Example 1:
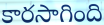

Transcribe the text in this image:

కారసాగింది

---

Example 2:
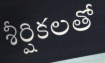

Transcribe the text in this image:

శీర్షికలతో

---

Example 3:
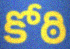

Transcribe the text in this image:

కోఠి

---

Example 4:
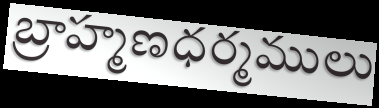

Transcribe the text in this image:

బ్రాహ్మణధర్మములు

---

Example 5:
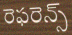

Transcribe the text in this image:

రెఫరెన్స్